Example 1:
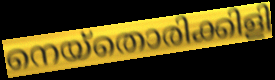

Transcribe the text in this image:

നെയ്തൊരിക്കിളി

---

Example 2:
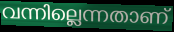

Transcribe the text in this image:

വന്നില്ലെന്നതാണ്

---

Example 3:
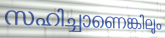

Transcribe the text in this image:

സഹിച്ചാണെങ്കിലും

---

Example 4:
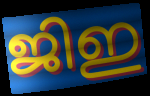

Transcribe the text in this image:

ജിഇ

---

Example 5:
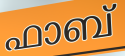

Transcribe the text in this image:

ഫാബ്